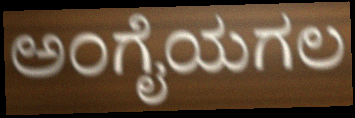
ಅಂಗೈಯಗಲ